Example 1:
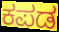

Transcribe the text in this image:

ಕಪಡ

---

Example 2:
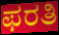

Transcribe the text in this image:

ಫರತಿ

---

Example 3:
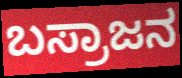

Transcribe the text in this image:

ಬಸ್ರಾಜನ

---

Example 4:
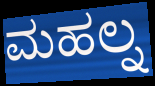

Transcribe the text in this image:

ಮಹಲ್ನ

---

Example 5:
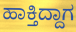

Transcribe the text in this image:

ಹಾಕ್ತಿದ್ದಾಗ